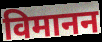
विमानन